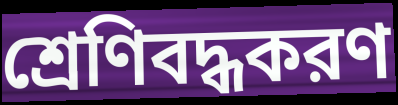
শ্রেণিবদ্ধকরণ